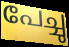
പേച്ചു